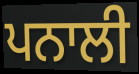
ਪਨਾਲੀ